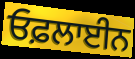
ਓਫ਼ਲਾਈਨ